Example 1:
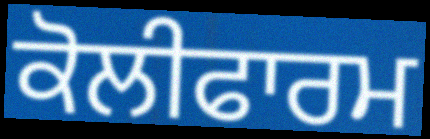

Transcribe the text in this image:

ਕੋਲੀਫਾਰਮ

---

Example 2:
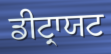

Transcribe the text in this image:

ਡੀਟ੍ਰਾਯਟ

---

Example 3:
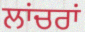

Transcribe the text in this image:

ਲਾਂਚਰਾਂ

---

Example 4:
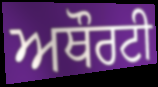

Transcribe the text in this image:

ਅਥੌਰਟੀ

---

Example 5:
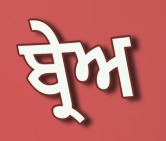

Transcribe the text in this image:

ਬ੍ਰੇਅ